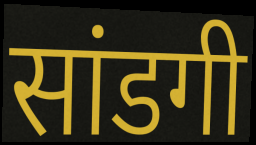
सांडगी